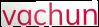
vachun